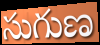
సుగుణ